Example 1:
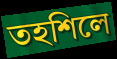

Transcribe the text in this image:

তহশিলে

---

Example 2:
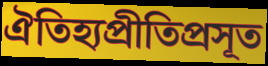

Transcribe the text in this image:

ঐতিহ্যপ্রীতিপ্রসূত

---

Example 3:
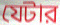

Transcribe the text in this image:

যেটার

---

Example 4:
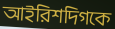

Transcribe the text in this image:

আইরিশদিগকে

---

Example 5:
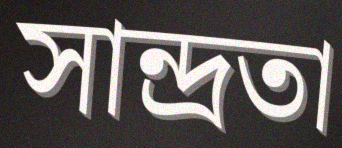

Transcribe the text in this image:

সান্দ্রতা